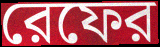
রেফের